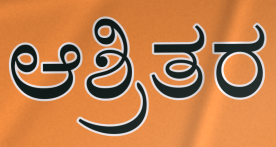
ಆಶ್ರಿತರ